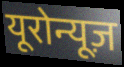
यूरोन्यूज़